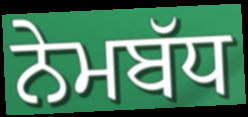
ਨੇਮਬੱਧ